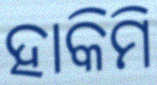
ହାକିମି